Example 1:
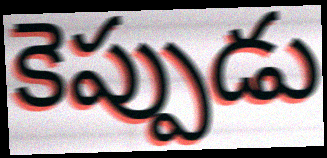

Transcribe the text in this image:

కెప్పుడు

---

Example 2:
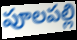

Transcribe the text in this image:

పూలపల్లి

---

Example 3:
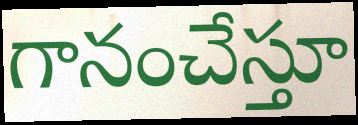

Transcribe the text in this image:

గానంచేస్తూ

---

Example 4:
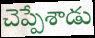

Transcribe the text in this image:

చెప్పేశాడు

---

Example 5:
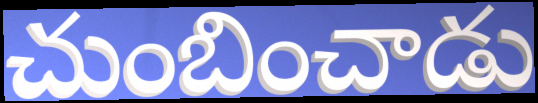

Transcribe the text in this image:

చుంబించాడు